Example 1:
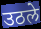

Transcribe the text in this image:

उठले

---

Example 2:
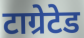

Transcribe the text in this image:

टाग्रेटेड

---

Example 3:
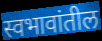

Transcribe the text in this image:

स्वभावांतील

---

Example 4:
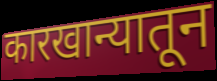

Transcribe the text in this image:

कारखान्यातून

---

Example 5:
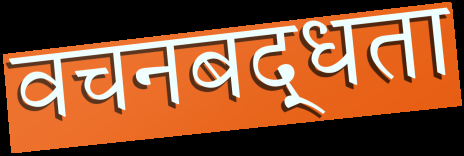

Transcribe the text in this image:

वचनबद्धता